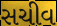
સચીવ